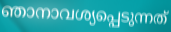
ഞാനാവശ്യപ്പെടുന്നത്